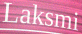
Laksmi